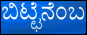
ಬಿಟ್ಟೆನೆಂಬ